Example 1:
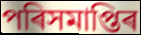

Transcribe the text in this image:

পৰিসমাপ্তিৰ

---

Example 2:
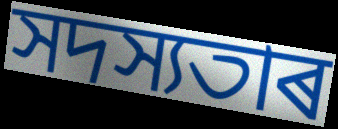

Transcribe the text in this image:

সদস্যতাৰ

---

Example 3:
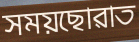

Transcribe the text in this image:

সময়ছোৱাত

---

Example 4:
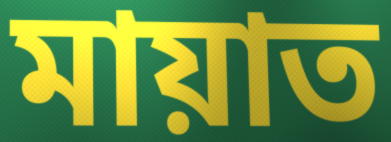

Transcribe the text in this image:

মায়াত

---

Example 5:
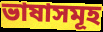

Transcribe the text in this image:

ভাষাসমূহ